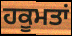
ਹਕੂਮਤਾਂ